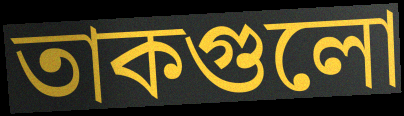
তাকগুলো